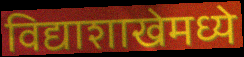
विद्याशाखेमध्ये